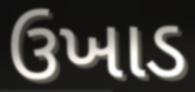
ઉખાડ